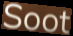
Soot